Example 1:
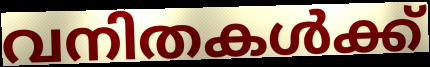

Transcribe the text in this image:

വനിതകൾക്ക്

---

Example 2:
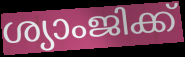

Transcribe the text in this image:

ശ്യാംജിക്ക്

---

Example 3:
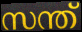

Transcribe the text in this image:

സന്ത്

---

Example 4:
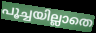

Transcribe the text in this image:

പൂച്ചയില്ലാതെ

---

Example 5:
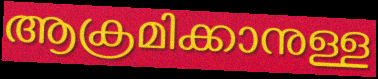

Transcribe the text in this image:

ആക്രമിക്കാനുള്ള